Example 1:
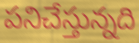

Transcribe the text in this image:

పనిచేస్తున్నది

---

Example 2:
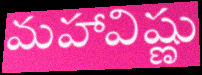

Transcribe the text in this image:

మహావిష్ణు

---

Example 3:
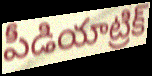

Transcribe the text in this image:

పీడియాట్రిక్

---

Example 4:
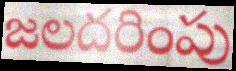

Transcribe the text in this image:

జలదరింపు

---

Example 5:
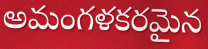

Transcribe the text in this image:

అమంగళకరమైన